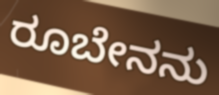
ರೂಬೇನನು